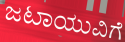
ಜಟಾಯುವಿಗೆ